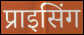
प्राइसिंग